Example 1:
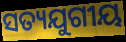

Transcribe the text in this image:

ସତ୍ୟଯୁଗୀୟ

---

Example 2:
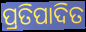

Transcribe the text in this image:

ପ୍ରତିପାଦିତ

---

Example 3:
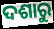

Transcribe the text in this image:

ଦଶାରୁ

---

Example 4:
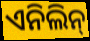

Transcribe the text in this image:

ଏନିଲିନ୍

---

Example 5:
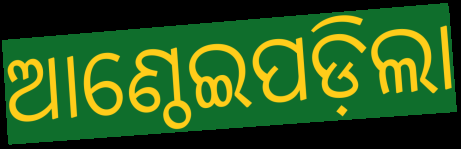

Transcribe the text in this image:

ଆଣ୍ଠେଇପଡ଼ିଲା